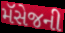
મૅસેજની